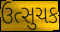
ઉત્સુચક